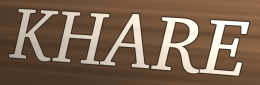
KHARE